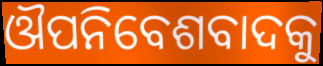
ଔପନିବେଶବାଦକୁ